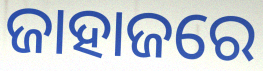
ଜାହାଜରେ